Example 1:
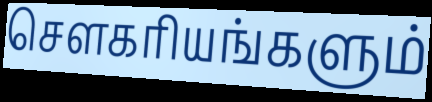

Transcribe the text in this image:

சௌகரியங்களும்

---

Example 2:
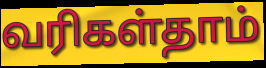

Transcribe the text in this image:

வரிகள்தாம்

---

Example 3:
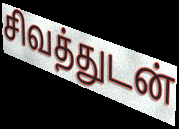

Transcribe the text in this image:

சிவத்துடன்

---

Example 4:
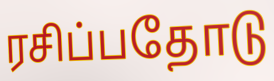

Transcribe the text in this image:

ரசிப்பதோடு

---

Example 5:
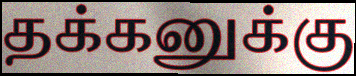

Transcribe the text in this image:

தக்கனுக்கு